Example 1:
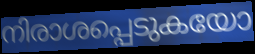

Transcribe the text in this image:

നിരാശപ്പെടുകയോ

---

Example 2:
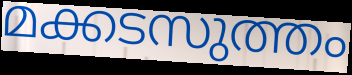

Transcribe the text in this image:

മക്കടസുത്തം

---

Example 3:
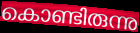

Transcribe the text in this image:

കൊണ്ടിരുന്നു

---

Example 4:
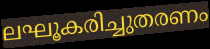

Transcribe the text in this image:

ലഘൂകരിച്ചുതരണം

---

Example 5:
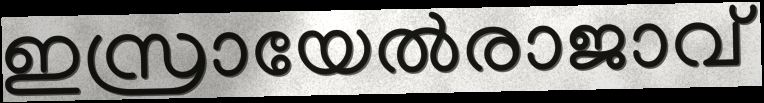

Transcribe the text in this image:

ഇസ്രായേൽരാജാവ്